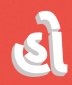
હો